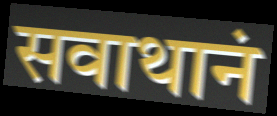
सवाथानं